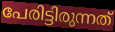
പേരിട്ടിരുന്നത്